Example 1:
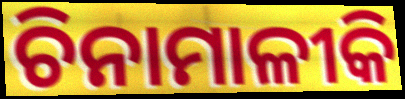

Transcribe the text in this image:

ଚିନାମାଳୀକି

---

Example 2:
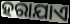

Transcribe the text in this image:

ହରାଯାଏ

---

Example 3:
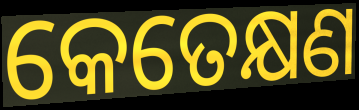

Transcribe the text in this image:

କେତେକ୍ଷଣ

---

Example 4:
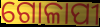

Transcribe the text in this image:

ଗୋଳାପୀ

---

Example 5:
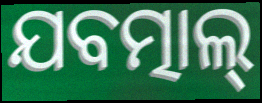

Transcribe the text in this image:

ଯବତ୍ମାଲ୍